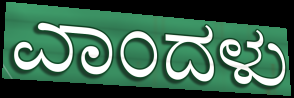
ಎಾಂದಳು